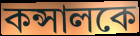
কন্সালকে